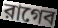
রাগেব